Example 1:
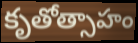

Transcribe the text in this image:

కృతోత్సాహం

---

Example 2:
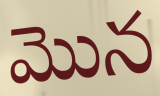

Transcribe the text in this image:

మొన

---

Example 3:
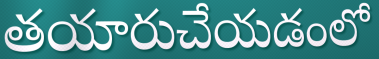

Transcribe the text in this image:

తయారుచేయడంలో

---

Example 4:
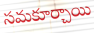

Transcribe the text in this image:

సమకూర్చాయి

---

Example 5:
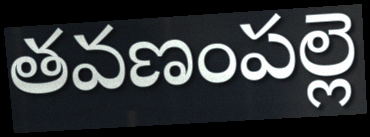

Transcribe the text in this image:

తవణంపల్లె